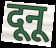
दूनू